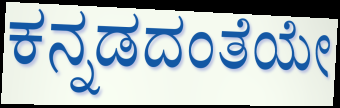
ಕನ್ನಡದಂತೆಯೇ